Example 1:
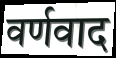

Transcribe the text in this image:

वर्णवाद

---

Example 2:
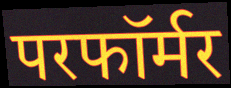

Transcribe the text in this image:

परफॉर्मर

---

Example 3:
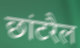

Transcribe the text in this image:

छांटरैल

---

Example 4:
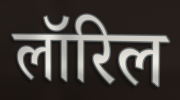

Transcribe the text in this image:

लॉरिल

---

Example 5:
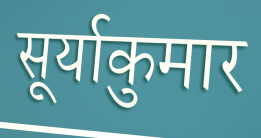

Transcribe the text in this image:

सूर्याकुमार